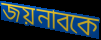
জয়নাবকে